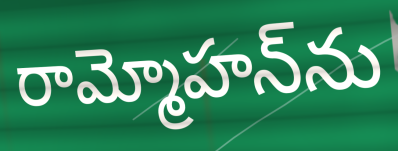
రామ్మోహన్‌ను